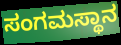
ಸಂಗಮಸ್ಥಾನ